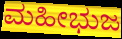
ಮಹೀಭುಜ